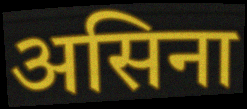
असिना